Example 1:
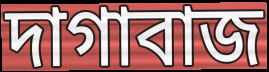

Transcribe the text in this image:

দাগাবাজ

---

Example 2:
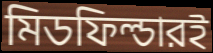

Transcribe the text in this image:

মিডফিল্ডারই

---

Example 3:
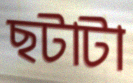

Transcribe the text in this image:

ছটাটা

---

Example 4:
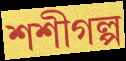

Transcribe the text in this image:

শশীগল্প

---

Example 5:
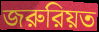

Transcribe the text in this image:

জরুরিয়ত